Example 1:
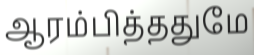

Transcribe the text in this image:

ஆரம்பித்ததுமே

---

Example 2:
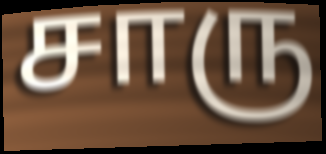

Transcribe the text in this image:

சாரு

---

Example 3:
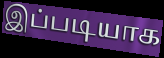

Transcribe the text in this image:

இப்படியாக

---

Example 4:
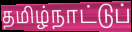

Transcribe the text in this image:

தமிழ்நாட்டுப்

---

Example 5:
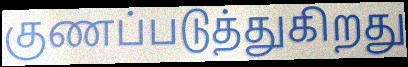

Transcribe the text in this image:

குணப்படுத்துகிறது